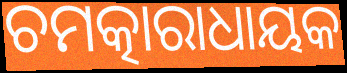
ଚମତ୍କାରାଧାୟକ